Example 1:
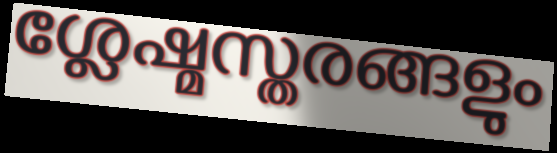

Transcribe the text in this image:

ശ്ലേഷ്മസ്തരങ്ങളും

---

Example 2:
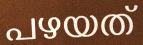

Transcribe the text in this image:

പഴയത്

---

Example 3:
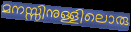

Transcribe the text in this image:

മനസ്സിനുള്ളിലൊരു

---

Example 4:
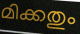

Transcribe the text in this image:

മിക്കതും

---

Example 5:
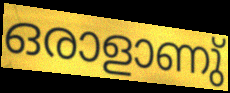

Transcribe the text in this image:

ഒരാളാണു്